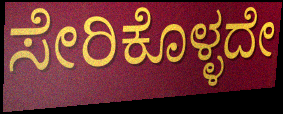
ಸೇರಿಕೊಳ್ಳದೇ